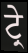
ਟ੍ਰੇ